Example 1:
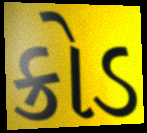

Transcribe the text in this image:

ક્રોડ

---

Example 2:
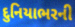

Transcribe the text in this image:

દુનિયાભરની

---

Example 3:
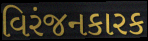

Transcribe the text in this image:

વિરંજનકારક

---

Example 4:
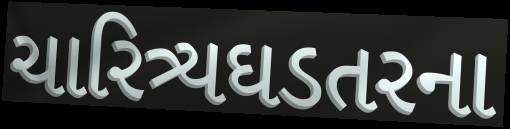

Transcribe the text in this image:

ચારિત્ર્યઘડતરના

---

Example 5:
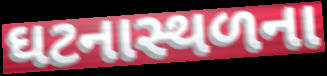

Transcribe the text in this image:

ઘટનાસ્થળના